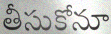
తీసుకోనూ